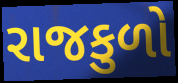
રાજકુળો